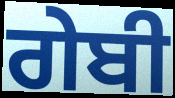
ਗੇਬੀ